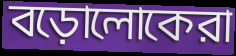
বড়োলোকেরা